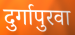
दुर्गापुरवा